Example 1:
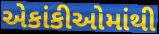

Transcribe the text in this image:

એકાંકીઓમાંથી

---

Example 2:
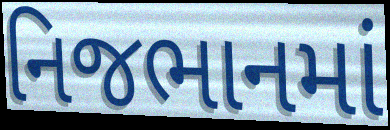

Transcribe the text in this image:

નિજભાનમાં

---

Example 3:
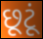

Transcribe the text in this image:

છૂટૂં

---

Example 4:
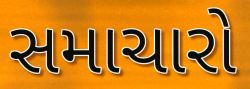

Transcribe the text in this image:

સમાચારો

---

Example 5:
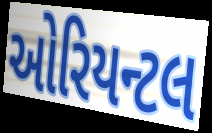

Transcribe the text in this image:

ઓરિયન્ટલ